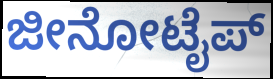
ಜೀನೋಟೈಪ್